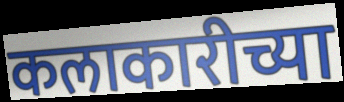
कलाकारीच्या